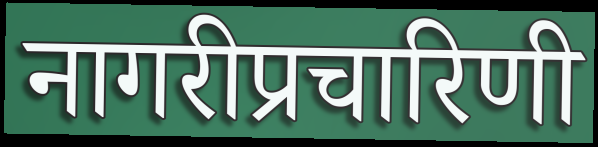
नागरीप्रचारिणी